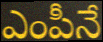
ఎంపీనే